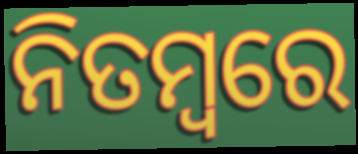
ନିତମ୍ବରେ